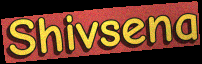
Shivsena